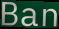
Ban